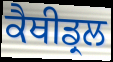
ਕੈਥੀਡ੍ਰਲ